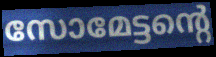
സോമേട്ടന്റെ